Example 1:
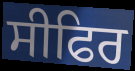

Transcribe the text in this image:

ਸੀਫਿਰ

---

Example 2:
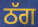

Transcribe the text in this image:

ਠੱਗ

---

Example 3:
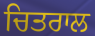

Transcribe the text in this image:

ਚਿਤਰਾਲ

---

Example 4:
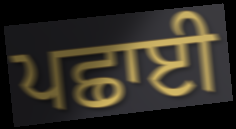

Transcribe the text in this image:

ਪਛਾਈ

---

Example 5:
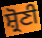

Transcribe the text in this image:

ਸ਼੍ਰੋਣੀ